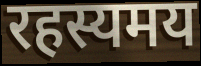
रहस्यमय